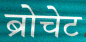
ब्रोचेट